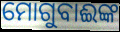
ମୋଗୁବାଈଙ୍କ